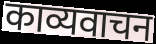
काव्यवाचन